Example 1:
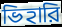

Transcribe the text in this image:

ভিহারি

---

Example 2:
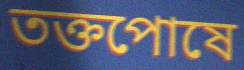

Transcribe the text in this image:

তক্তপোষে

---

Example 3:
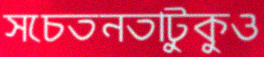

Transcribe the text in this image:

সচেতনতাটুকুও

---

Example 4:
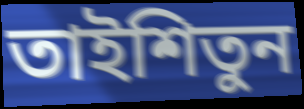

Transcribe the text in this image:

তাইশিতুন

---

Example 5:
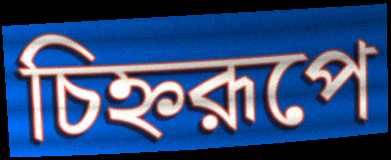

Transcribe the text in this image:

চিহ্নরূপে